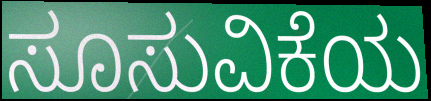
ಸೂಸುವಿಕೆಯ